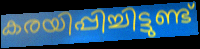
കരയിപ്പിച്ചിട്ടുണ്ട്